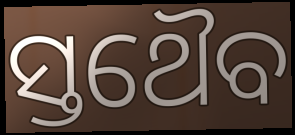
ସ୍ତଥୈବ